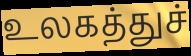
உலகத்துச்